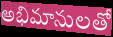
అభిమానులతో